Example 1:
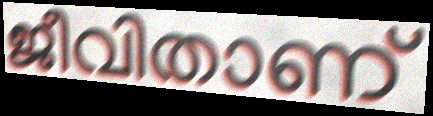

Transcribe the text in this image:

ജീവിതാണ്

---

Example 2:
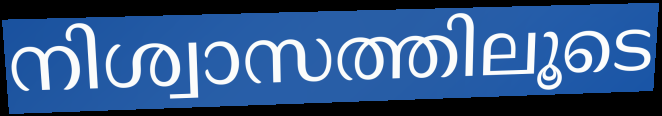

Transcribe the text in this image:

നിശ്വാസത്തിലൂടെ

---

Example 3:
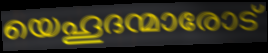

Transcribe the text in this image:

യെഹൂദന്മാരോട്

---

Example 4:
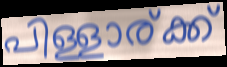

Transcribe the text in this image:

പിള്ളാര്ക്ക്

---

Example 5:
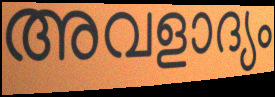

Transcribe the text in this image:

അവളാദ്യം